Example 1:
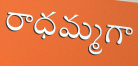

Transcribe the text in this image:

రాధమ్మగా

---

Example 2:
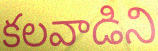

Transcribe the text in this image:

కలవాడిని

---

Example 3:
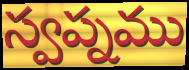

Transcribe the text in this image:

స్వప్నము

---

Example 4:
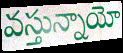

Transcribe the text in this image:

వస్తున్నాయో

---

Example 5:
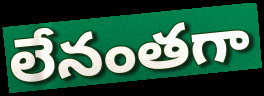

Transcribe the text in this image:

లేనంతగా